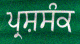
ਪ੍ਰਸ਼ਸੰਕ